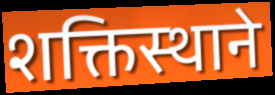
शक्तिस्थाने